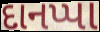
દાનપ્પા